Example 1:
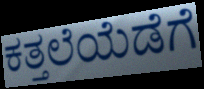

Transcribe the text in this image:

ಕತ್ತಲೆಯೆಡೆಗೆ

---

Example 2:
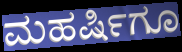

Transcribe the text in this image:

ಮಹರ್ಷಿಗೂ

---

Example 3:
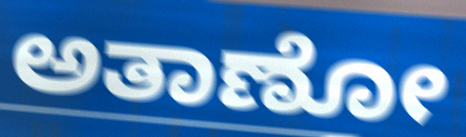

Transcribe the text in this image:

ಅತಾಣೋ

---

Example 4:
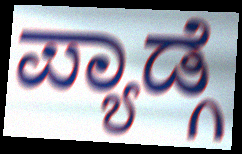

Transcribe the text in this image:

ಪ್ಯಾಡ್ಗೆ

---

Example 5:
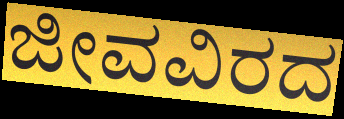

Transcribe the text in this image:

ಜೀವವಿರದ